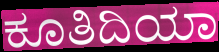
ಕೂತಿದಿಯಾ